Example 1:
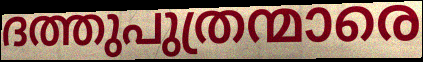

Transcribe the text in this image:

ദത്തുപുത്രന്മാരെ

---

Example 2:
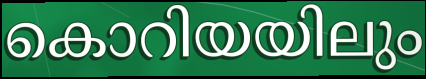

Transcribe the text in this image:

കൊറിയയിലും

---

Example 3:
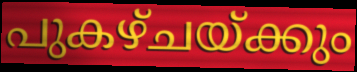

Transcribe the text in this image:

പുകഴ്ചയ്ക്കും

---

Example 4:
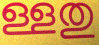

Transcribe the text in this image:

ള്ളതു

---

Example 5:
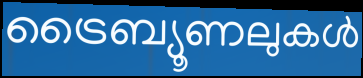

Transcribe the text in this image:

ട്രൈബ്യൂണലുകൾ